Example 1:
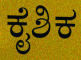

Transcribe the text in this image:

ಕೈಶಿಕ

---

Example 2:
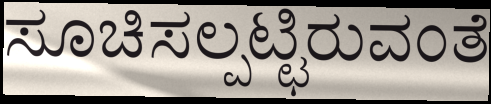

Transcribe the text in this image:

ಸೂಚಿಸಲ್ಪಟ್ಟಿರುವಂತೆ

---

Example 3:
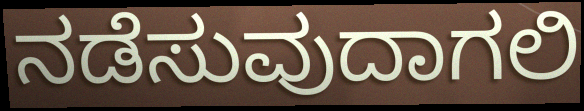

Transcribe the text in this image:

ನಡೆಸುವುದಾಗಲಿ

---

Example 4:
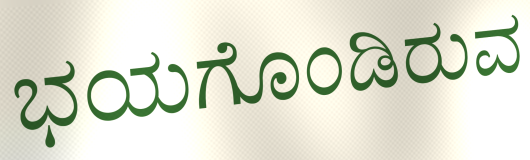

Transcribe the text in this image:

ಭಯಗೊಂಡಿರುವ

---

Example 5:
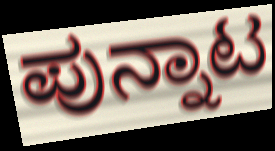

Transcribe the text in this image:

ಪುನ್ನಾಟ